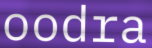
oodra